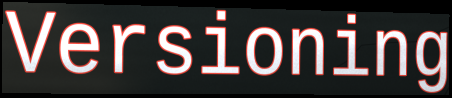
Versioning